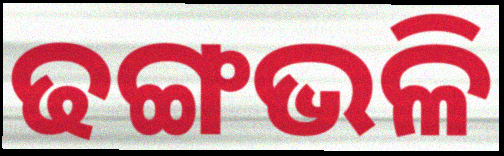
ଢଙ୍ଗଭଳି